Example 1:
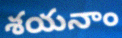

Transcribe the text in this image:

శయనాం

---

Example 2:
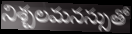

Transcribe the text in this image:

నిశ్చలమనస్సుతో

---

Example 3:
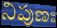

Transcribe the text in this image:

నిపుణః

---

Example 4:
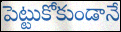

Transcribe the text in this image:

పెట్టుకోకుండానే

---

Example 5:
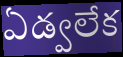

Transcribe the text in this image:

ఏడ్వలేక